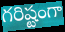
గరిష్టంగా